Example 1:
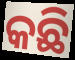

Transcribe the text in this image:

କଛି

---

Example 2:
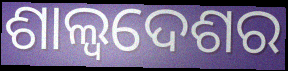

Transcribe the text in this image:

ଶାଲ୍ୱଦେଶର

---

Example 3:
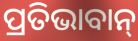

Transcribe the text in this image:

ପ୍ରତିଭାବାନ୍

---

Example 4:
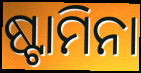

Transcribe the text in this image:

ଷ୍ଟାମିନା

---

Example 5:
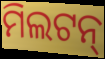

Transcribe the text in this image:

ମିଲଟନ୍